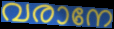
വരാനേ